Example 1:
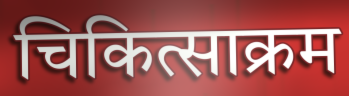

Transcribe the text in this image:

चिकित्साक्रम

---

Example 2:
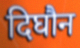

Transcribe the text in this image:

दिघौन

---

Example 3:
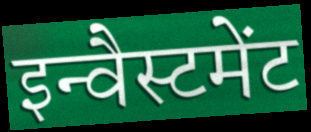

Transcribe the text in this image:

इन्वैस्टमेंट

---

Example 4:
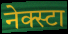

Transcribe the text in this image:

नेक्स्टा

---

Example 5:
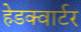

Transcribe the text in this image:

हेडक्वार्टर